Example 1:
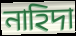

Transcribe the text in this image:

নাহিদা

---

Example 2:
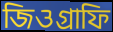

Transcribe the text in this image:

জিওগ্রাফি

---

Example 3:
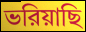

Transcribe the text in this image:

ভরিয়াছি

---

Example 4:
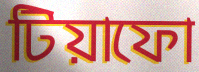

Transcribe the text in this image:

টিয়াফো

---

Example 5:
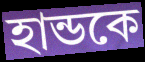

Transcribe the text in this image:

হান্ডকে